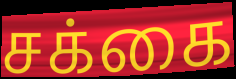
சக்கை